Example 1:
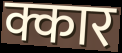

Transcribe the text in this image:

क्कार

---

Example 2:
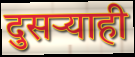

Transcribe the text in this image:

दुसर्‍याही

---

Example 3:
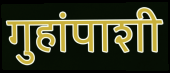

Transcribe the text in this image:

गुहांपाशी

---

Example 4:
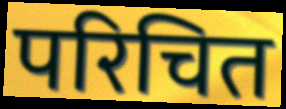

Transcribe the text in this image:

परिचित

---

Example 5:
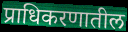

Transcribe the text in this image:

प्राधिकरणातील